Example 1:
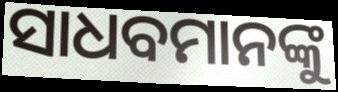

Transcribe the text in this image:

ସାଧବମାନଙ୍କୁ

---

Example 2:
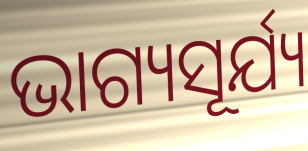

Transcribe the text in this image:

ଭାଗ୍ୟସୂର୍ଯ୍ୟ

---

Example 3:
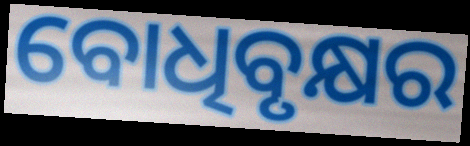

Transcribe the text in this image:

ବୋଧିବୃକ୍ଷର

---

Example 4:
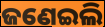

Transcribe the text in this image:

ଜଣେଇଲି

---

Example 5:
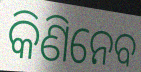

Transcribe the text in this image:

କିଣିନେବ